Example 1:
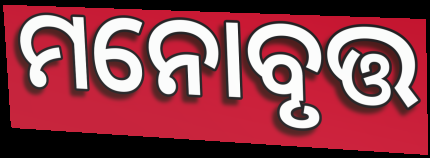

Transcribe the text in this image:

ମନୋବୃତ୍ତ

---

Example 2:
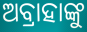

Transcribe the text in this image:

ଅବ୍ରାହାଙ୍କୁ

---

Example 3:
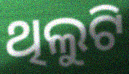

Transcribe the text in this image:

ଥିଲୁଟି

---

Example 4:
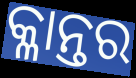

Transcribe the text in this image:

କ୍ଳାନ୍ତର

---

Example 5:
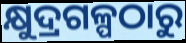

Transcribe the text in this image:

କ୍ଷୁଦ୍ରଗଳ୍ପଠାରୁ